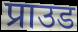
प्राउड